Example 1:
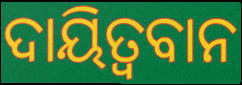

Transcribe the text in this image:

ଦାୟିତ୍ବବାନ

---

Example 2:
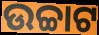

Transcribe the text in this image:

ଉଚ୍ଚାଟ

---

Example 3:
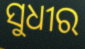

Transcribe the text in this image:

ସୁଧୀର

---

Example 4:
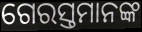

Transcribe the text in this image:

ଗେରସ୍ତମାନଙ୍କ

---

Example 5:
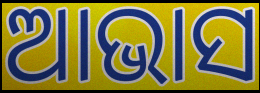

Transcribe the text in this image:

ଆଭାସ